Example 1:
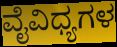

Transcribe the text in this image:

ವೈವಿಧ್ಯಗಳ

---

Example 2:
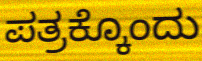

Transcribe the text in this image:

ಪತ್ರಕ್ಕೊಂದು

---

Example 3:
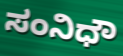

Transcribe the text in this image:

ಸಂನಿಧೌ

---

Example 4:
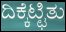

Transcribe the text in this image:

ದಿಕ್ಕೆಟ್ಟಿತು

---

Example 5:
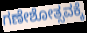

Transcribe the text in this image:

ಗಣೇಶೋತ್ಸವಕ್ಕೆ